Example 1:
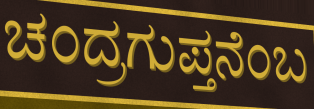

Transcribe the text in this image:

ಚಂದ್ರಗುಪ್ತನೆಂಬ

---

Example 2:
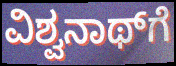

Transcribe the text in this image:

ವಿಶ್ವನಾಥ್‌ಗೆ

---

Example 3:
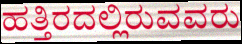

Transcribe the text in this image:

ಹತ್ತಿರದಲ್ಲಿರುವವರು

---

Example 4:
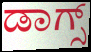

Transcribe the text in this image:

ಡಾಗ್ಸ್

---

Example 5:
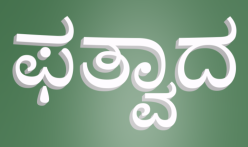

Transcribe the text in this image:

ಫತ್ವಾದ